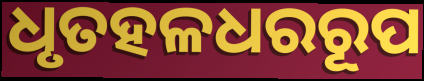
ଧୃତହଳଧରରୂପ